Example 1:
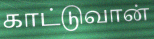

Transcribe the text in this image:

காட்டுவான்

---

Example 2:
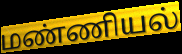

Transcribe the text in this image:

மண்ணியல்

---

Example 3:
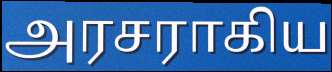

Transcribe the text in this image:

அரசராகிய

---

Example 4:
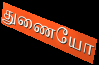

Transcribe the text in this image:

துணையோ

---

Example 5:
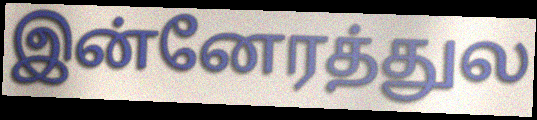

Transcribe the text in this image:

இன்னேரத்துல